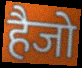
हैजो